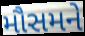
મૌસમને